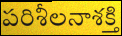
పరిశీలనాశక్తి